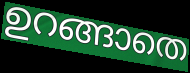
ഉറങ്ങാതെ